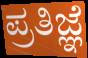
ಪ್ರತಿಜ್ಞೆ